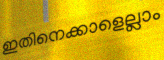
ഇതിനെക്കാളെല്ലാം